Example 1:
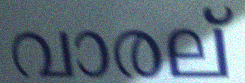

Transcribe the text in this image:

വാരല്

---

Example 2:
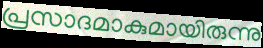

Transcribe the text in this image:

പ്രസാദമാകുമായിരുന്നു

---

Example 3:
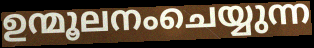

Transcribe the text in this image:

ഉന്മൂലനംചെയ്യുന്ന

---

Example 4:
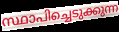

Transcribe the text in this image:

സ്ഥാപിച്ചെടുക്കുന്ന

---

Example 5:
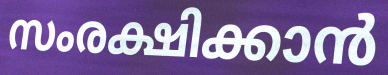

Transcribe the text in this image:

സംരക്ഷിക്കാൻ